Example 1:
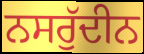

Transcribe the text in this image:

ਨਸਰੁੱਦੀਨ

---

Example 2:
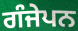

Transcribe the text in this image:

ਗੰਜੇਪਨ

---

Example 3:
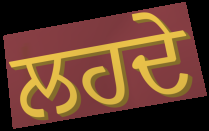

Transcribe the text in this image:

ਲਹਦੇ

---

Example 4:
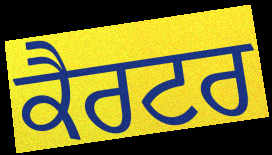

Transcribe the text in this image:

ਕੈਰਟਰ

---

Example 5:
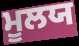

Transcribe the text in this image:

ਮੂਲਯ